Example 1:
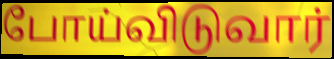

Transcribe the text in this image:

போய்விடுவார்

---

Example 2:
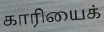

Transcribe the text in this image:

காரியைக்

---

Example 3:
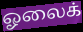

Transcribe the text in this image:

ஓலைக்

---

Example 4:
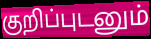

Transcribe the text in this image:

குறிப்புடனும்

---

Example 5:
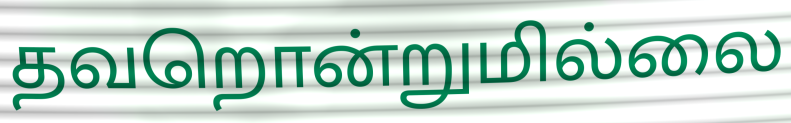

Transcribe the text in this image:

தவறொன்றுமில்லை